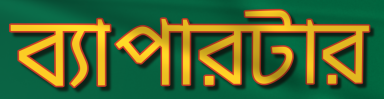
ব্যাপারটার